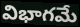
విభాగమే